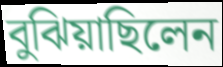
বুঝিয়াছিলেন